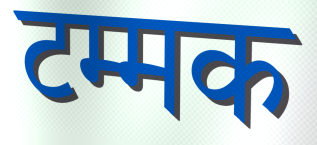
टम्मक